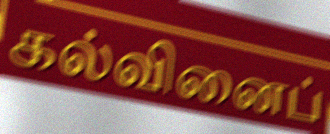
கல்வினைப்